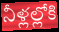
నీళ్లల్లోకి